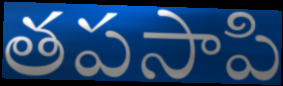
తపసాపి